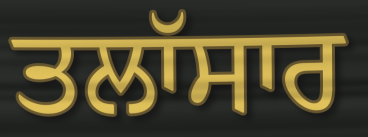
ਤਲਾੱਸਾਰ